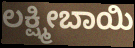
ಲಕ್ಷ್ಮೀಬಾಯಿ